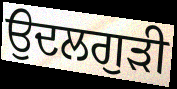
ਉਦਲਗੁੜੀ